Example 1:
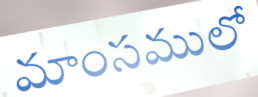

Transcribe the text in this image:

మాంసములో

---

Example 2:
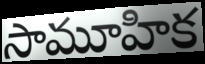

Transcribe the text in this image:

సామూహిక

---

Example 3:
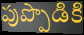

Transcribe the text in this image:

పుప్పొడికి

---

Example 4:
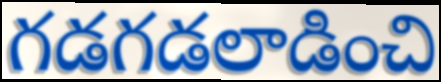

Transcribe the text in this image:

గడగడలాడించి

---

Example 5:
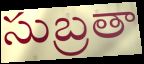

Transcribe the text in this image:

సుబ్రతా